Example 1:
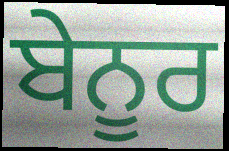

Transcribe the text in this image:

ਬੇਨੂਰ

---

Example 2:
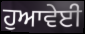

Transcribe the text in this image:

ਹੁਆਵੇਈ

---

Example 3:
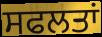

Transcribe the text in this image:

ਸਫਲਤਾਂ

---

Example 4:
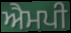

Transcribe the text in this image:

ਐਮਪੀ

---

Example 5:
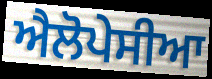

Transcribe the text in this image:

ਐਲੋਪੇਸੀਆ